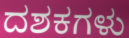
ದಶಕಗಳು